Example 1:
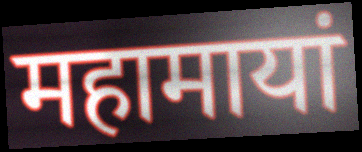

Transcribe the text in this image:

महामायां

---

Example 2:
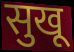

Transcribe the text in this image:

सुखू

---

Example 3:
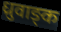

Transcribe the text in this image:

ध्रुवाङ्क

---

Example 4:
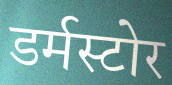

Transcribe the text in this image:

डर्मस्टोर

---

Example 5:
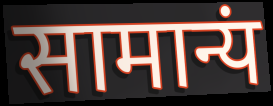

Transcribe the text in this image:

सामान्यं